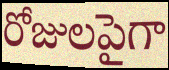
రోజులపైగా